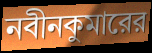
নবীনকুমারের